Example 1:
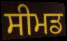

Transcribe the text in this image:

ਸੀਮਡ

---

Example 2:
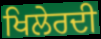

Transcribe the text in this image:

ਖਿਲੇਰਦੀ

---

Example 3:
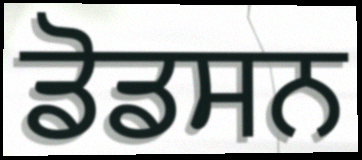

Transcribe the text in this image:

ਡੋਡਸਨ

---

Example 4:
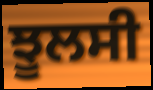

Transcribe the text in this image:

ਝੂਲਸੀ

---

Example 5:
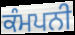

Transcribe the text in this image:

ਕੰਮਪਨੀ